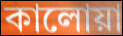
কালোয়া